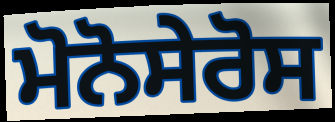
ਮੋਨੋਸੇਰੋਸ